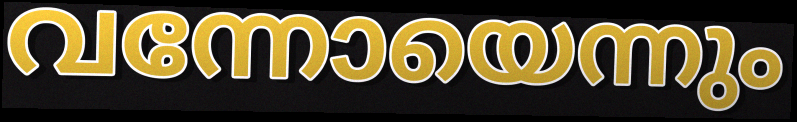
വന്നോയെന്നും